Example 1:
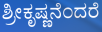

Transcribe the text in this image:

ಶ್ರೀಕೃಷ್ಣನೆಂದರೆ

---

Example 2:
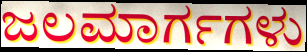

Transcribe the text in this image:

ಜಲಮಾರ್ಗಗಳು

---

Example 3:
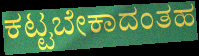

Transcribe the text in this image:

ಕಟ್ಟಬೇಕಾದಂತಹ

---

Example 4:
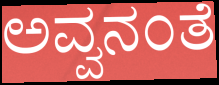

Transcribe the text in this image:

ಅವ್ವನಂತೆ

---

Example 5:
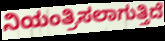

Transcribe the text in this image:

ನಿಯಂತ್ರಿಸಲಾಗುತ್ತಿದೆ